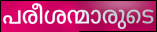
പരീശന്മാരുടെ